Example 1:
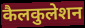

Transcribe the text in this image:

कैलकुलेशन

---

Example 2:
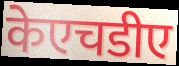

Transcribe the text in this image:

केएचडीए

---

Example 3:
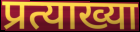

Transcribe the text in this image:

प्रत्याख्या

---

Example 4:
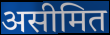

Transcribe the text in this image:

असीमित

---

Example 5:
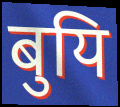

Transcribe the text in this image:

बुयि